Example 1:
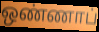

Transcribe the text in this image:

ஒண்ணாப்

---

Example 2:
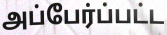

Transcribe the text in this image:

அப்பேர்ப்பட்ட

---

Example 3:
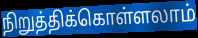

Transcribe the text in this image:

நிறுத்திக்கொள்ளலாம்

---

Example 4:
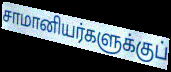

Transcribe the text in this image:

சாமானியர்களுக்குப்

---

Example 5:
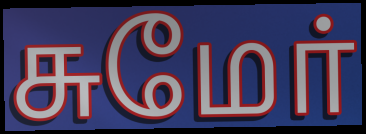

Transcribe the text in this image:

சுமேர்